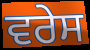
ਵਰੇਸ